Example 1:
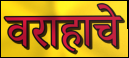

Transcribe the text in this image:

वराहाचे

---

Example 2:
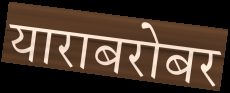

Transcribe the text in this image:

याराबरोबर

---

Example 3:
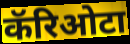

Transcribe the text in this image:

कॅरिओटा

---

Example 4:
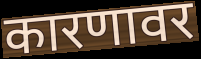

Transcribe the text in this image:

कारणावर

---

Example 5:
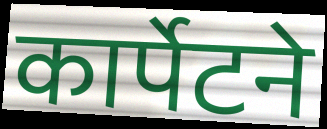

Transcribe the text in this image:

कार्पेटने